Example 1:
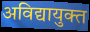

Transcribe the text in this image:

अविद्यायुक्त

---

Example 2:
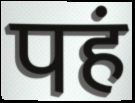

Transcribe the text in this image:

पहं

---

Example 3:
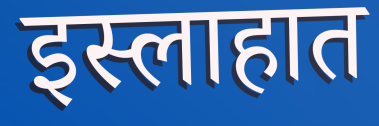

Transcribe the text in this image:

इस्लाहात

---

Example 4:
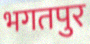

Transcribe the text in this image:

भगतपुर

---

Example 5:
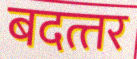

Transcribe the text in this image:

बदत्‍तर